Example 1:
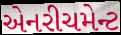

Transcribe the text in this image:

એનરીચમેન્ટ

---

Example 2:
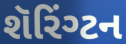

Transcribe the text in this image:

શૅરિંગ્ટન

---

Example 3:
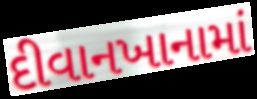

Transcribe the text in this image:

દીવાનખાનામાં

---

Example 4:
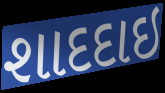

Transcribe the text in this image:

શાદદાઇ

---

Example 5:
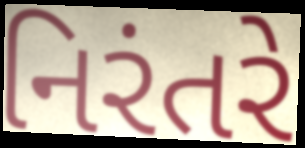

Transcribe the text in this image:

નિરંતરે